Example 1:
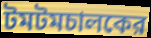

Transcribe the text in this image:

টমটমচালকের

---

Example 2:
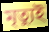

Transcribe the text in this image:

মৃত্যুই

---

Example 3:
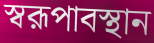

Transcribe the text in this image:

স্বরূপাবস্থান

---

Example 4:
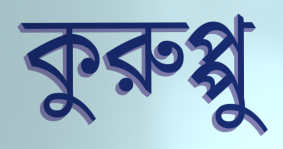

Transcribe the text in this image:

কুরুপ্পু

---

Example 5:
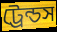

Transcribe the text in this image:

ট্রেন্ডস